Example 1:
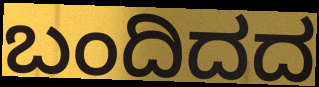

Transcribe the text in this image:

ಬಂದಿದದ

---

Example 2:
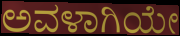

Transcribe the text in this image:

ಅವಳಾಗಿಯೇ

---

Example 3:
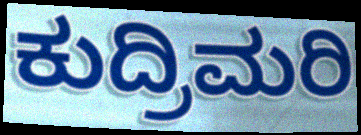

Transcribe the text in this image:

ಕುದ್ರಿಮರಿ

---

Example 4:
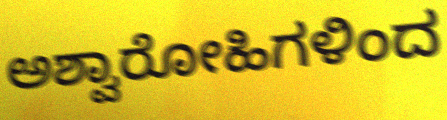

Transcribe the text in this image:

ಅಶ್ವಾರೋಹಿಗಳಿಂದ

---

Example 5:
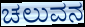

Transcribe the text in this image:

ಚಲುವನ